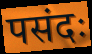
पसंदः